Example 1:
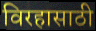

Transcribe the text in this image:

विरहासाठी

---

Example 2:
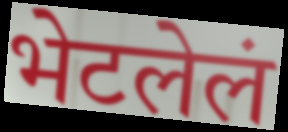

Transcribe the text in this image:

भेटलेलं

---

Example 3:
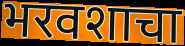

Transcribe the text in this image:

भरवशाचा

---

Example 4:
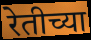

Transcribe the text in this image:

रेतीच्या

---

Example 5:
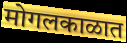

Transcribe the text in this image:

मोगलकाळात